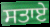
ਸਤਾਏ